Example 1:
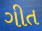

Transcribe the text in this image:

ગીત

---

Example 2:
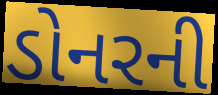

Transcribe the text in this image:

ડોનરની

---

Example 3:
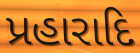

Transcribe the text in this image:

પ્રહારાદિ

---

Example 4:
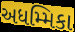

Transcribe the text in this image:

અધમ્મિકા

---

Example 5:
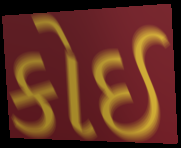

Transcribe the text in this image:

કોઈ